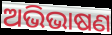
ଅଭିଭାଷଣ